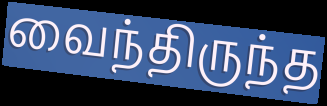
வைந்திருந்த